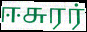
ஈசுரர்